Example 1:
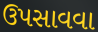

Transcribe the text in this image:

ઉપસાવવા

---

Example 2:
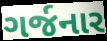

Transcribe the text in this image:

ગર્જનાર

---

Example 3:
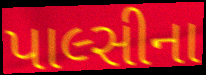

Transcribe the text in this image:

પાલ્સીના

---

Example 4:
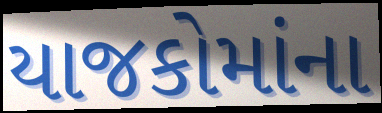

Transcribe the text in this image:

યાજકોમાંના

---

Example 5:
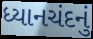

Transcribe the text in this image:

ધ્યાનચંદનું